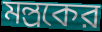
মন্ত্রকের